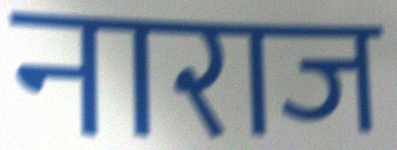
नाराज